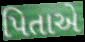
પિતાએ